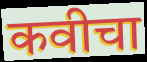
कवीचा